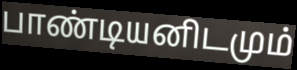
பாண்டியனிடமும்